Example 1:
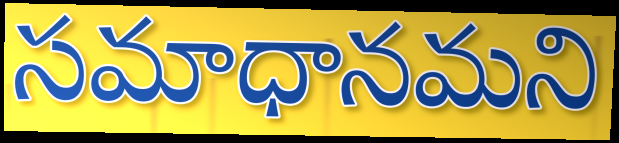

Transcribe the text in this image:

సమాధానమని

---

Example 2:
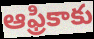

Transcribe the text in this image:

ఆఫ్రికాకు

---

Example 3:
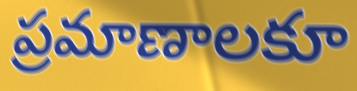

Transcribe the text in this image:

ప్రమాణాలకూ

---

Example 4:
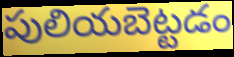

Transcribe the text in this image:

పులియబెట్టడం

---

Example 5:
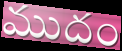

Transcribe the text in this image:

ముదం